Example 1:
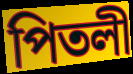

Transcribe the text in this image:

পিতলী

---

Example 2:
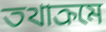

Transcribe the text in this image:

তথাক্ৰমে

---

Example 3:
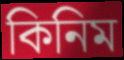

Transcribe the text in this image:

কিনিম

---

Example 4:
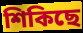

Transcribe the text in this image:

শিকিছে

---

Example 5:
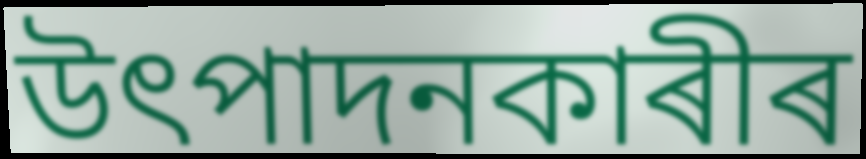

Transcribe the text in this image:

উৎপাদনকাৰীৰ